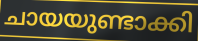
ചായയുണ്ടാക്കി